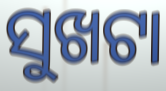
ସୁଖଟା